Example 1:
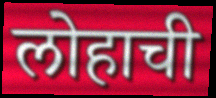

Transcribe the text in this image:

लोहाची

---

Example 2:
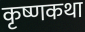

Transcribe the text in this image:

कृष्णकथा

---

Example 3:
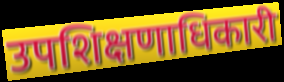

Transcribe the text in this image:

उपशिक्षणाधिकारी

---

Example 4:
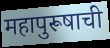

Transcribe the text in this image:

महापुरूषाची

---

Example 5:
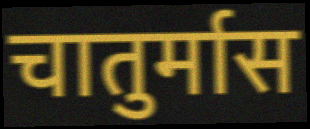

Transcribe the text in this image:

चातुर्मास